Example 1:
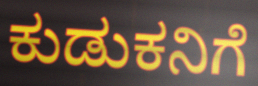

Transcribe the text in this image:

ಕುಡುಕನಿಗೆ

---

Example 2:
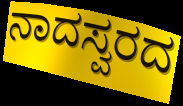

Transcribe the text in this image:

ನಾದಸ್ವರದ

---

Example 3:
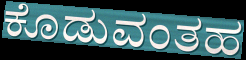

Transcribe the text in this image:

ಕೊಡುವಂತಹ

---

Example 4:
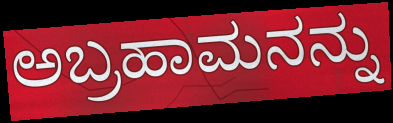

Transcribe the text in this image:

ಅಬ್ರಹಾಮನನ್ನು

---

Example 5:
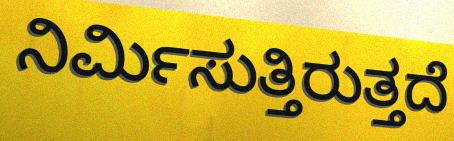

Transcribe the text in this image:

ನಿರ್ಮಿಸುತ್ತಿರುತ್ತದೆ